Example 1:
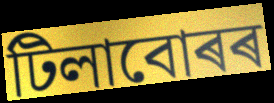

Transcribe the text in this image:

টিলাবোৰৰ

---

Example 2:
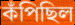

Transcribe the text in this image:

কঁপিছিল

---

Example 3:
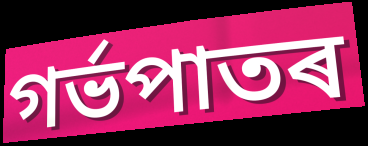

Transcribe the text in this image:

গৰ্ভপাতৰ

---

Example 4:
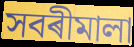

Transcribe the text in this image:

সবৰীমালা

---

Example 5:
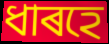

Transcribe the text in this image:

ধাৰহে